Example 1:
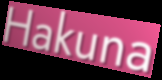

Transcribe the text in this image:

Hakuna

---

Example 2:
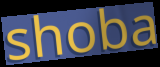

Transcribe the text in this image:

shoba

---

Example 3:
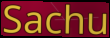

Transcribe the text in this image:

Sachu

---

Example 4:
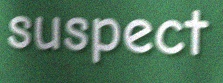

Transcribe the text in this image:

suspect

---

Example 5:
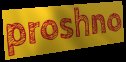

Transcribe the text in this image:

proshno